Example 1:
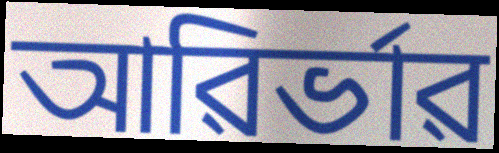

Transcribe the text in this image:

আৱিৰ্ভাৱ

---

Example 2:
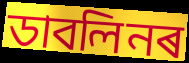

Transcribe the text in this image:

ডাবলিনৰ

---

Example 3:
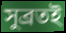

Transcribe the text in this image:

সুব্ৰতই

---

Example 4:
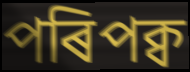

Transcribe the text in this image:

পৰিপক্ব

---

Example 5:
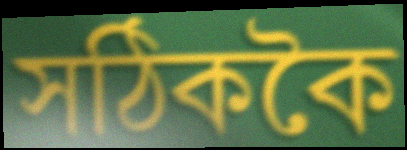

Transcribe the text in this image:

সঠিককৈ